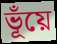
ভূঁয়ে